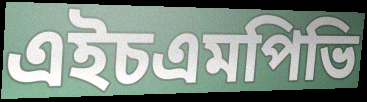
এইচএমপিভি